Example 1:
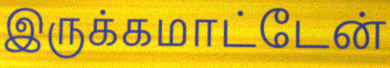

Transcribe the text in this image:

இருக்கமாட்டேன்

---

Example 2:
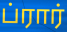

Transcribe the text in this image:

ப்ரார்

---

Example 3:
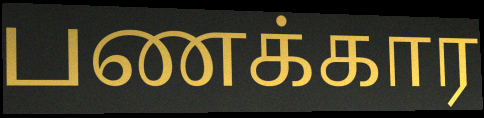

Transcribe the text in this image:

பணக்கார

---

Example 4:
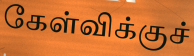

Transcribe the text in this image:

கேள்விக்குச்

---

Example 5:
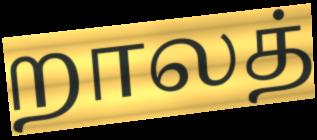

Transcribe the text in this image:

றாலத்